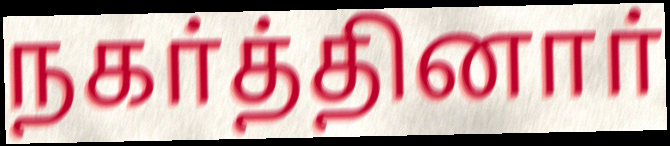
நகர்த்தினார்